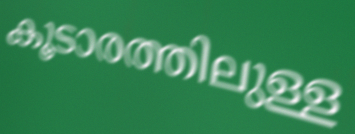
കൂടാരത്തിലുള്ള